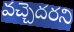
వచ్చెదరని